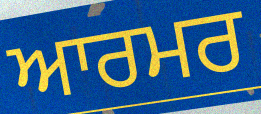
ਆਰਮਰ